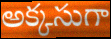
అక్కసుగా